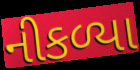
નીકળ્યા